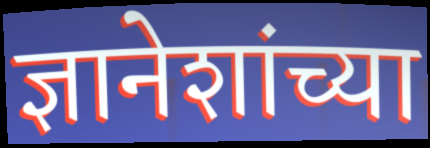
ज्ञानेशांच्या